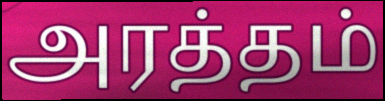
அரத்தம்